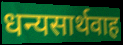
धन्यसार्थवाह